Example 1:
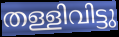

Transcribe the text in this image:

തള്ളിവിട്ടു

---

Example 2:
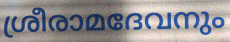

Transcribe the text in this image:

ശ്രീരാമദേവനും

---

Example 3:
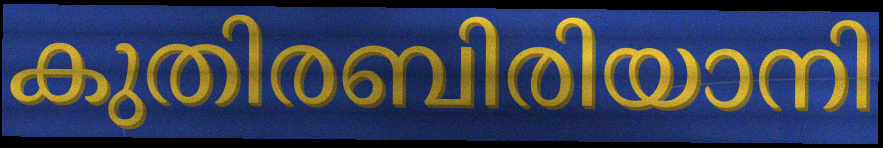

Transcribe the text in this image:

കുതിരബിരിയാനി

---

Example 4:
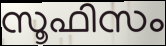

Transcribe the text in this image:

സൂഫിസം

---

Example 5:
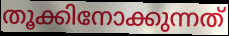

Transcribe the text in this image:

തൂക്കിനോക്കുന്നത്